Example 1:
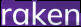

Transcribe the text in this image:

raken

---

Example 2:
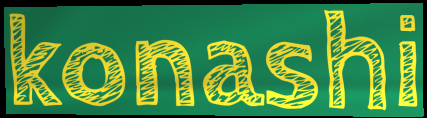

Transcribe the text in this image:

konashi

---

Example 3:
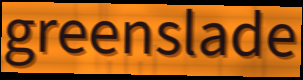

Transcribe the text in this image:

greenslade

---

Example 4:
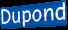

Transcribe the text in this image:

Dupond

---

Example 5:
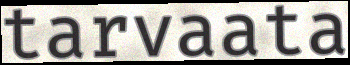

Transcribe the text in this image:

tarvaata